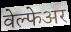
वेल्फेअर